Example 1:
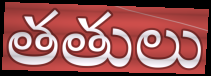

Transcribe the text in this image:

తతులు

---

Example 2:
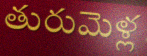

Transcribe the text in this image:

తురుమెళ్ల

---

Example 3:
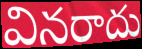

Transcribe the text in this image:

వినరాదు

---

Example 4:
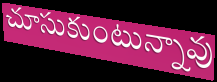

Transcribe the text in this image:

చూసుకుంటున్నావు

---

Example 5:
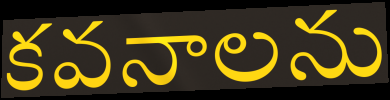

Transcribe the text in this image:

కవనాలను